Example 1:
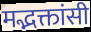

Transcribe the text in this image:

मद्भक्तांसी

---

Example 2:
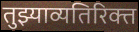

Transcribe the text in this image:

तुझ्याव्यतिरिक्त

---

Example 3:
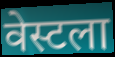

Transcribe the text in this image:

वेस्टला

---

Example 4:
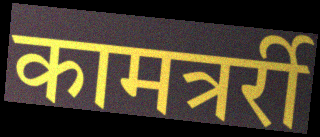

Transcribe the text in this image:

कामत्रर्री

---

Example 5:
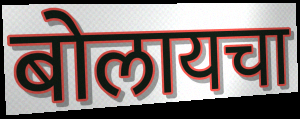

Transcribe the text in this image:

बोलायचा